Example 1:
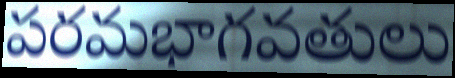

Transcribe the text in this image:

పరమభాగవతులు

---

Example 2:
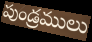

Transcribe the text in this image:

పుండ్రములు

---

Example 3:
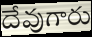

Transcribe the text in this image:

దేవుగారు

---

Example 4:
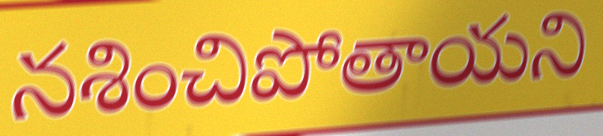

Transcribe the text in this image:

నశించిపోతాయని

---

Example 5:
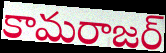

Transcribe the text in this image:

కామరాజర్